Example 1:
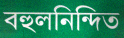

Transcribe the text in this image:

বহুলনিন্দিত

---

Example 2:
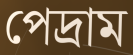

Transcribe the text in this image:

পেদ্রাম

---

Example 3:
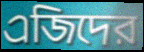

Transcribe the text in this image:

এজিদের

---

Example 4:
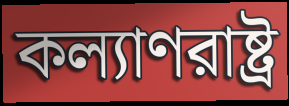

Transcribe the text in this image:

কল্যাণরাষ্ট্র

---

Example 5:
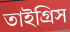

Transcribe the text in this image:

তাইগ্রিস